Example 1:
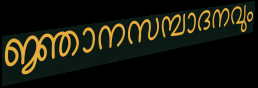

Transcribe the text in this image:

ജ്ഞാനസമ്പാദനവും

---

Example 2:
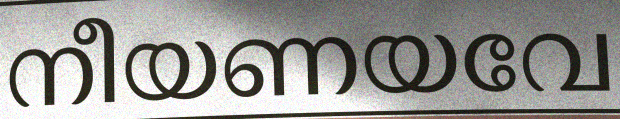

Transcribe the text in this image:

നീയണയവേ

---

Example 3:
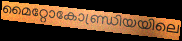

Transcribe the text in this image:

മൈറ്റോകോണ്ഡ്രിയയിലെ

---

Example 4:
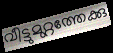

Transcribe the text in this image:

വീട്ടുമുറ്റത്തേക്കു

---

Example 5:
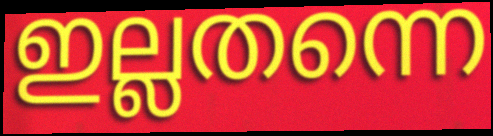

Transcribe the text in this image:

ഇല്ലതന്നെ